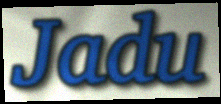
Jadu